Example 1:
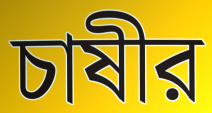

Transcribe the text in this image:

চাষীর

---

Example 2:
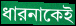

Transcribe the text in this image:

ধারনাকেই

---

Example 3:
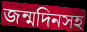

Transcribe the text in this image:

জন্মদিনসহ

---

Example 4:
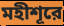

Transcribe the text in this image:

মহীশূরে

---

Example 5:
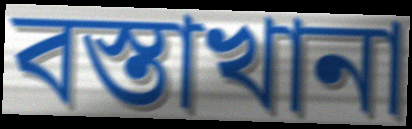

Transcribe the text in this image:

বস্তাখানা